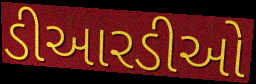
ડીઆરડીઓ